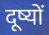
दूष्यों